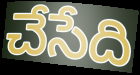
చేసేది